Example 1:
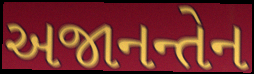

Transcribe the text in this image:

અજાનન્તેન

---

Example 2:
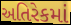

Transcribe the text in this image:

અતિરેકમાં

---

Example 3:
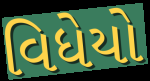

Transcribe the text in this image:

વિધેયો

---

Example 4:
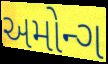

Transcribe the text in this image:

અમોન્ગ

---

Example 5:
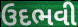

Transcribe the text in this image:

ઉદભવી